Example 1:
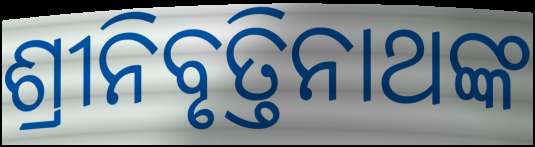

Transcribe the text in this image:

ଶ୍ରୀନିବୃତ୍ତିନାଥଙ୍କ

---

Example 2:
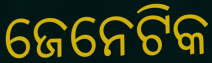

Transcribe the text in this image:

ଜେନେଟିକ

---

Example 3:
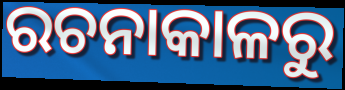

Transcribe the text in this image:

ରଚନାକାଳରୁ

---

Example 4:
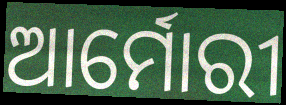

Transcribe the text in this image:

ଆର୍ମୋରୀ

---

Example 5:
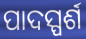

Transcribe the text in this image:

ପାଦସ୍ପର୍ଶ